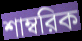
শাম্বরিক